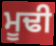
ਮੂਢੀ